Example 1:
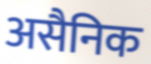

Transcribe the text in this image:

असैनिक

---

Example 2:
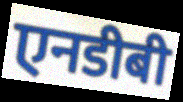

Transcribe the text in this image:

एनडीबी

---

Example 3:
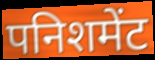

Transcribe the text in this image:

पनिशमेंट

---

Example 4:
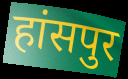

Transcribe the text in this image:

हांसपुर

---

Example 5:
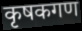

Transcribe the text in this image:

कृषकगण